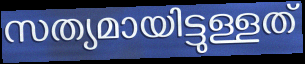
സത്യമായിട്ടുള്ളത്